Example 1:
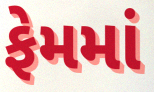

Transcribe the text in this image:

ફેમમાં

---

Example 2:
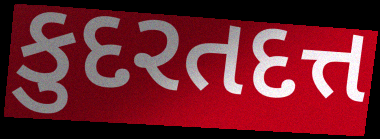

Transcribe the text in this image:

કુદરતદત્ત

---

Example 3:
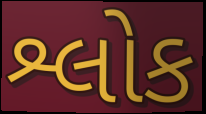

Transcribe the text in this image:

શ્લોક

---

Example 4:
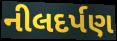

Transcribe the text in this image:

નીલદર્પણ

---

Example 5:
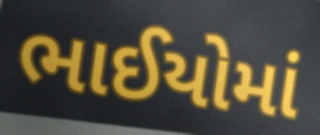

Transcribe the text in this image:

ભાઈયોમાં